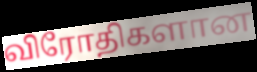
விரோதிகளான